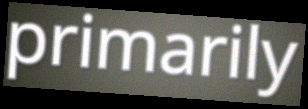
primarily